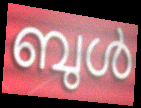
ബുൾ